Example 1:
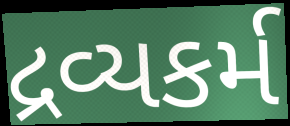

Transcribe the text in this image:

દ્રવ્યકર્મ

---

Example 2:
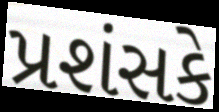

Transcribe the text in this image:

પ્રશંસકે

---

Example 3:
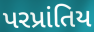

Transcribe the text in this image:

પરપ્રાંતિય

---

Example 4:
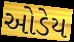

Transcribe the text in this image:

ઓડેય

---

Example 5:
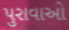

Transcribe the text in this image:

પુરાવાઓ